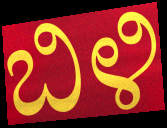
ಬಿಳಿ